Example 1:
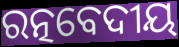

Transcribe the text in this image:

ରତ୍ନବେଦୀୟ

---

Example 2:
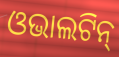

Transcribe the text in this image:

ଓଭାଲଟିନ୍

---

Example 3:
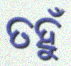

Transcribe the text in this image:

ତହୁଁ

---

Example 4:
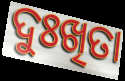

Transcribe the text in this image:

ଦୁଃଖିତା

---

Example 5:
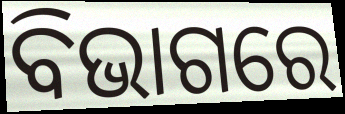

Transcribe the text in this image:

ବିଭାଗରେ